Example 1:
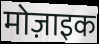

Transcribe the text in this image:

मोज़ाइक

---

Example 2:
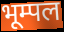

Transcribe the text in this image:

भूम्पल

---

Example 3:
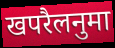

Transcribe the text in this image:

खपरैलनुमा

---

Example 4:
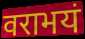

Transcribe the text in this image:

वराभयं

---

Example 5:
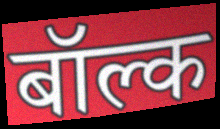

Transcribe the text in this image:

बॉल्क